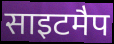
साइटमैप